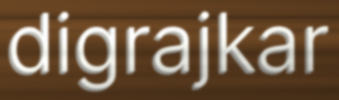
digrajkar